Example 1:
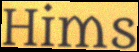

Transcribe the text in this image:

Hims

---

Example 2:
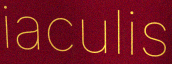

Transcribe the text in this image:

iaculis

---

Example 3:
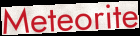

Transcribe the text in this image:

Meteorite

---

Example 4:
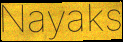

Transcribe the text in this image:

Nayaks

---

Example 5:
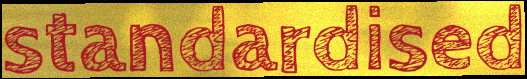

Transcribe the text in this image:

standardised